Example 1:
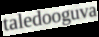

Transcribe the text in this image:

taledooguva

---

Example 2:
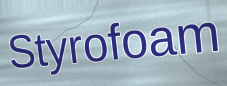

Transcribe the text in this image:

Styrofoam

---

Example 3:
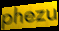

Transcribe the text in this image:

phezu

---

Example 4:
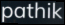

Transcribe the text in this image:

pathik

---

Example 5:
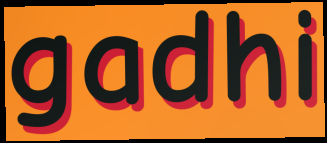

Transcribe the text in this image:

gadhi